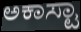
ಅಕಾಸ್ಟಾ